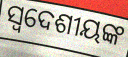
ସ୍ଵଦେଶୀୟଙ୍କ